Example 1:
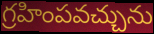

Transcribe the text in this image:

గ్రహింపవచ్చును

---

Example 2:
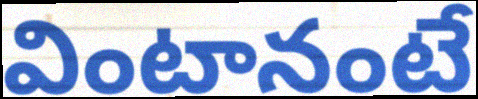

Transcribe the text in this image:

వింటానంటే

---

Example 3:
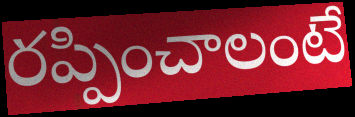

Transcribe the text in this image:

రప్పించాలంటే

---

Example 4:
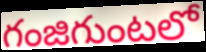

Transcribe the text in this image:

గంజిగుంటలో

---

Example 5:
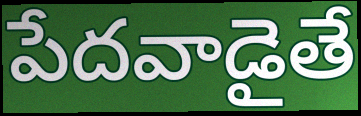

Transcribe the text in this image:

పేదవాడైతే